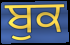
ਬੁਕ